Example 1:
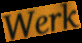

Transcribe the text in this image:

Werk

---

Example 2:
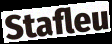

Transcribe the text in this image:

Stafleu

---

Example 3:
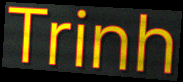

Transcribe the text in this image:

Trinh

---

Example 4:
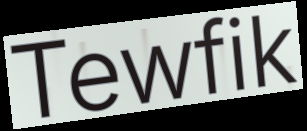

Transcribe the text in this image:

Tewfik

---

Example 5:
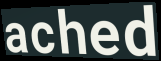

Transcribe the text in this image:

ached